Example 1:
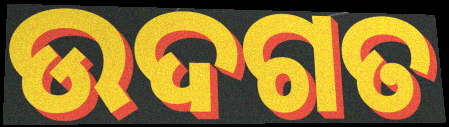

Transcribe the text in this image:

ଉଦଗତ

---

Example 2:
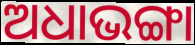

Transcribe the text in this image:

ଅଧାଭଙ୍ଗା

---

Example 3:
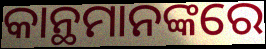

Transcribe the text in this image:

କାନ୍ଥମାନଙ୍କରେ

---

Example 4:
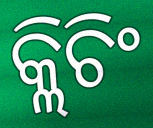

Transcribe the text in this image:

କ୍ଲିଚିଂ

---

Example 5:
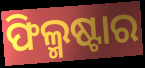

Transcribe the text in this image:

ଫିଲ୍ମଷ୍ଟାର